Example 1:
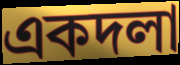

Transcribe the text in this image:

একদলা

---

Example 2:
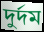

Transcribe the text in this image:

দুর্দম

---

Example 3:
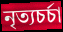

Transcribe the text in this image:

নৃত্যচর্চা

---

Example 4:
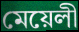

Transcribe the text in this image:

মেয়েলী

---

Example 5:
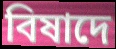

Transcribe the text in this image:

বিষাদে